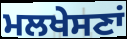
ਮਲਖੇਸਣਾਂ